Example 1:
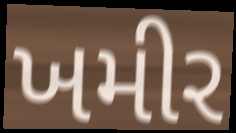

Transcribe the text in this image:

ખમીર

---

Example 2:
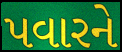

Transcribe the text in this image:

પવારને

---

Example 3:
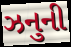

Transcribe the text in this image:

ઝનુની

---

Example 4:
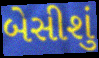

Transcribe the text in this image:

બેસીશું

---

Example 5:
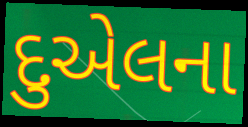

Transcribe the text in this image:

દુએલના